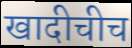
खादीचीच